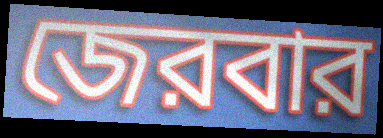
জেরবার